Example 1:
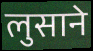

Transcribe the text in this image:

लुसाने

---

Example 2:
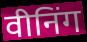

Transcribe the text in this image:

वीनिंग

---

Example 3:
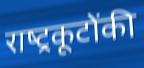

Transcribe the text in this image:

राष्ट्रकूटोंकी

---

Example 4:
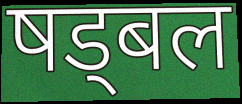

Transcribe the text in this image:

षड्बल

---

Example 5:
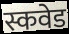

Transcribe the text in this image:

स्कवेड